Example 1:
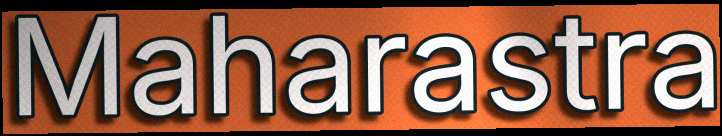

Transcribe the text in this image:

Maharastra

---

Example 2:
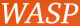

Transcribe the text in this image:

WASP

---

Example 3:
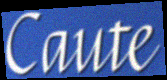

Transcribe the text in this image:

Caute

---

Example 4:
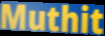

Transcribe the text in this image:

Muthit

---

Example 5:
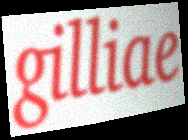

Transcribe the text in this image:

gilliae